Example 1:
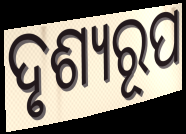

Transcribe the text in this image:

ଦୃଶ୍ୟରୂପ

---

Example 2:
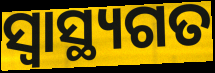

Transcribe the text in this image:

ସ୍ବାସ୍ଥ୍ୟଗତ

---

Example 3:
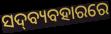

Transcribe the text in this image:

ସଦ୍‍ବ୍ୟବହାରରେ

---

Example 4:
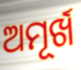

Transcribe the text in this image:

ଅମୂର୍ଖ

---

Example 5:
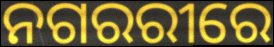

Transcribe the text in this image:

ନଗରରୀରେ